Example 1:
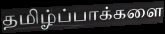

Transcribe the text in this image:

தமிழ்ப்பாக்களை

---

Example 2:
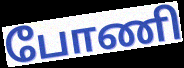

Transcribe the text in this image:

போணி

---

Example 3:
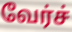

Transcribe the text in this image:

வேர்ச்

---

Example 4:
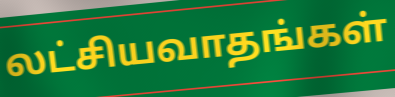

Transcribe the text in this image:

லட்சியவாதங்கள்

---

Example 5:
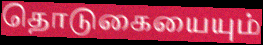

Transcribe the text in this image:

தொடுகையையும்